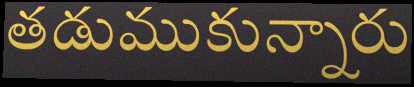
తడుముకున్నారు